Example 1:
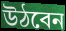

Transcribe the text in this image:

উঠবেন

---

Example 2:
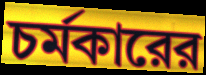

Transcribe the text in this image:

চর্মকারের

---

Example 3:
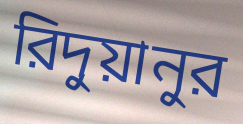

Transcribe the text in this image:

রিদুয়ানুর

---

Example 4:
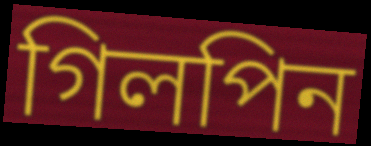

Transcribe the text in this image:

গিলপিন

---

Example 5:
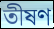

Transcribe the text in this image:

তীষণ